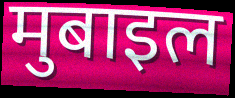
मुबाइल